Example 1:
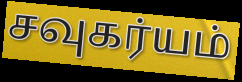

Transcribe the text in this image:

சவுகர்யம்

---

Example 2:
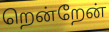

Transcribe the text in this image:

றென்றேன்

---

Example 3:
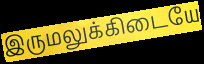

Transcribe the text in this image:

இருமலுக்கிடையே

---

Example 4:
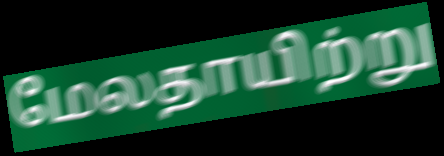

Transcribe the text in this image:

மேலதாயிற்று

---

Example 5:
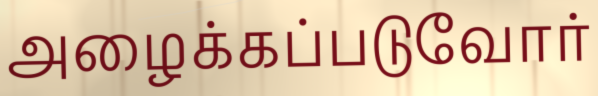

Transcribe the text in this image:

அழைக்கப்படுவோர்